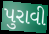
પુરાવી